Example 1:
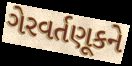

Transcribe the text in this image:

ગેરવર્તણૂકને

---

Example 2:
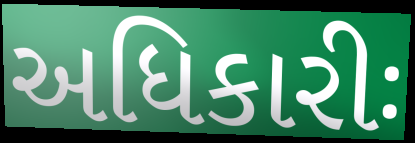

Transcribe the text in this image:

અધિકારીઃ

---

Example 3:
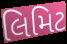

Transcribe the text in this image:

લિમિટ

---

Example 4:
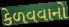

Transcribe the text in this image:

કેળવવાનો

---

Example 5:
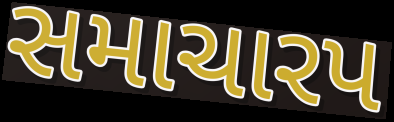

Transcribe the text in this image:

સમાચારપ